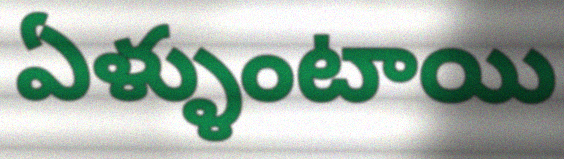
ఏళ్ళుంటాయి